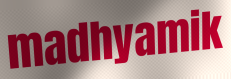
madhyamik